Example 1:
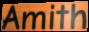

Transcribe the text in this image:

Amith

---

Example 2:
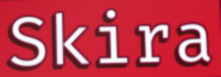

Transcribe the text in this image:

Skira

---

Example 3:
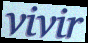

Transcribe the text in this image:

vivir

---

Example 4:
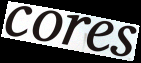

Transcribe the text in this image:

cores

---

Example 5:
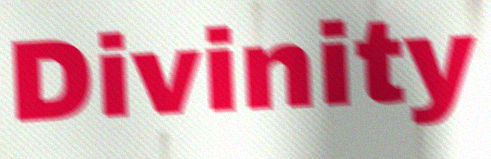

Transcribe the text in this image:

Divinity